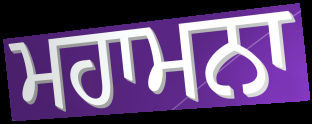
ਮਹਾਮਨਾ